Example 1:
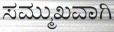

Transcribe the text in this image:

ಸಮ್ಮುಖವಾಗಿ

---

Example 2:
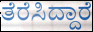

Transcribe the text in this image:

ತೆರೆಸಿದ್ದಾರೆ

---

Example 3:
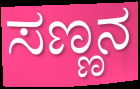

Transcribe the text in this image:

ಸಣ್ಣನ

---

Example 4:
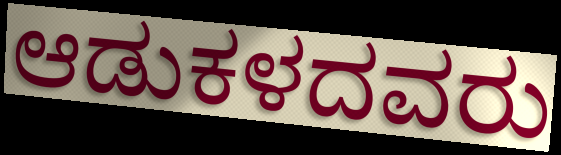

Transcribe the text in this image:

ಆಡುಕಳದವರು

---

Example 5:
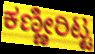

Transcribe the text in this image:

ಕಣ್ಣೀರಿಟ್ಟ